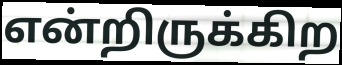
என்றிருக்கிற